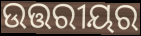
ଉତ୍ତରୀୟର